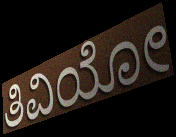
ತಿವಿಯೋ